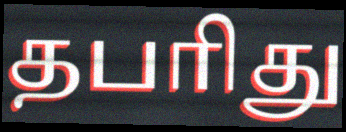
தபரிது